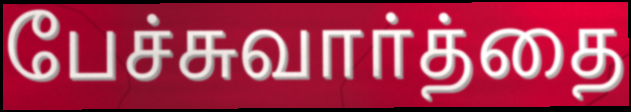
பேச்சுவார்த்தை